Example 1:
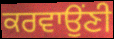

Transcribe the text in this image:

ਕਰਵਾਉਂਣੀ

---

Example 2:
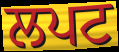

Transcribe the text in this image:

ਲਪਟ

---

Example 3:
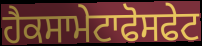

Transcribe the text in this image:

ਹੈਕਸਾਮੇਟਾਫੋਸਫੇਟ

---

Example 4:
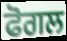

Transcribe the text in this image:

ਫੋਗਲ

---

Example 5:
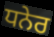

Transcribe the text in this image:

ਧਨੇਰ